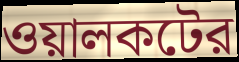
ওয়ালকটের